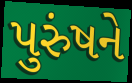
પુરુંષને